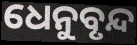
ଧେନୁବୃନ୍ଦ